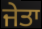
ਜੇਤਾ